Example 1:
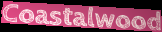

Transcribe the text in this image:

Coastalwood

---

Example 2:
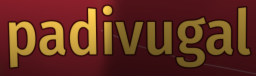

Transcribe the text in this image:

padivugal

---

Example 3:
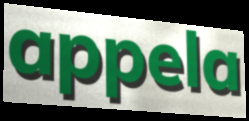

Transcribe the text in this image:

appela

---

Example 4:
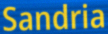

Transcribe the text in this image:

Sandria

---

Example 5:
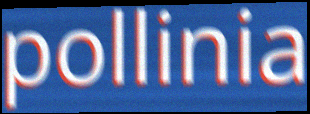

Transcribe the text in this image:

pollinia